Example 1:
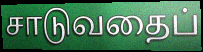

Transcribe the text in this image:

சாடுவதைப்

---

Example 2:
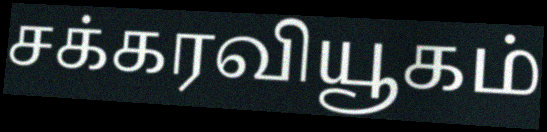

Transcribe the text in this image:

சக்கரவியூகம்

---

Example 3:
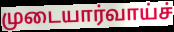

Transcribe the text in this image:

முடையார்வாய்ச்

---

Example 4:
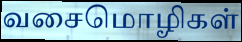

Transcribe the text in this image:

வசைமொழிகள்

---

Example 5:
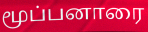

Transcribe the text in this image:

மூப்பனாரை